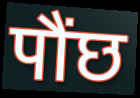
पौंछ